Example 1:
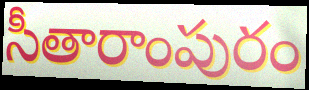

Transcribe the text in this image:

సీతారాంపురం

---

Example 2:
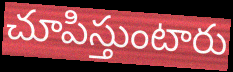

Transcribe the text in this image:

చూపిస్తుంటారు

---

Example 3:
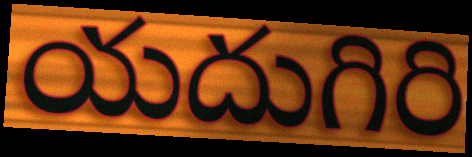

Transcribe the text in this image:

యదుగిరి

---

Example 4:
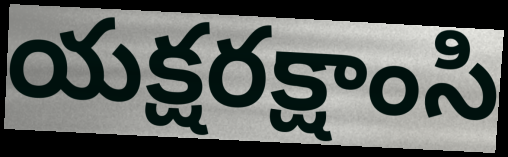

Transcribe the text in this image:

యక్షరక్షాంసి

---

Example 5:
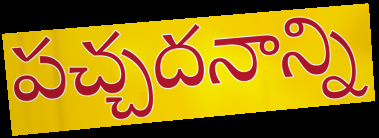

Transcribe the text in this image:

పచ్చదనాన్ని